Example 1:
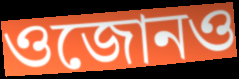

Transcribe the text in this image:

ওজোনও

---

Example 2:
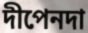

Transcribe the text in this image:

দীপেনদা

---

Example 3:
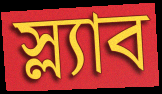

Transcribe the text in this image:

স্ল্যাব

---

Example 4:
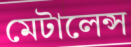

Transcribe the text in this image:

মেটালেন্স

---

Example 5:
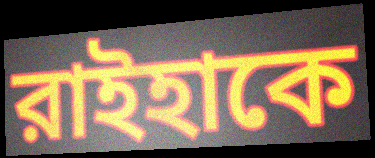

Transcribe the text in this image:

রাইহাকে